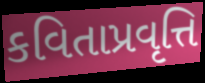
કવિતાપ્રવૃત્તિ